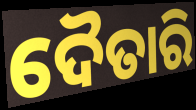
ଦୈତାରି